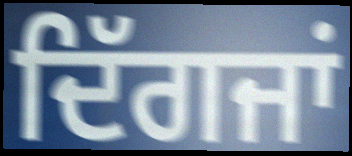
ਦਿੱਗਜਾਂ